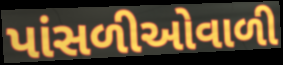
પાંસળીઓવાળી